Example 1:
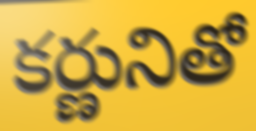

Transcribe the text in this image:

కర్ణునితో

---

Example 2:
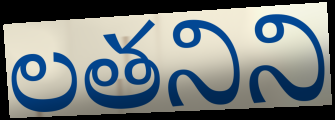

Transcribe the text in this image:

లతనిని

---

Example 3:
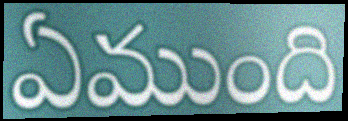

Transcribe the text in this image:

ఏముంది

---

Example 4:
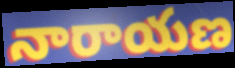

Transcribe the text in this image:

నారాయణ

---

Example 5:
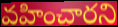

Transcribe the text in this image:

వహించారని